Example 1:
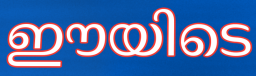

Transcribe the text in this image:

ഈയിടെ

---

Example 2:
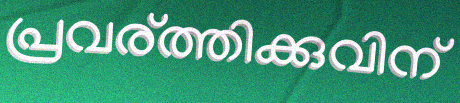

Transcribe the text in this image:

പ്രവര്ത്തിക്കുവിന്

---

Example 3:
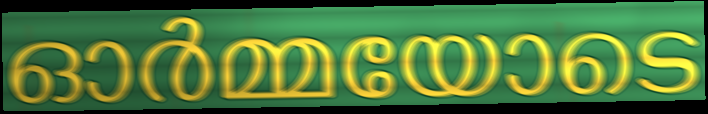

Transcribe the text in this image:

ഓർമ്മയോടെ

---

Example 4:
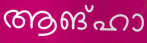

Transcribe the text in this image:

ആങ്ഹാ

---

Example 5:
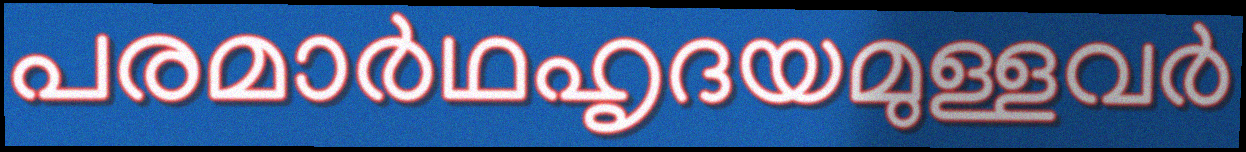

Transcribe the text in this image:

പരമാർഥഹൃദയമുള്ളവർ